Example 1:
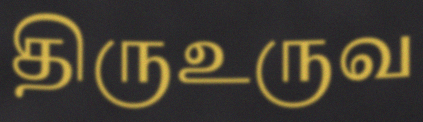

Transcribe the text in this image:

திருஉருவ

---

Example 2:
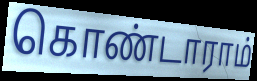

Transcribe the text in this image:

கொண்டாராம்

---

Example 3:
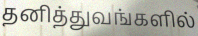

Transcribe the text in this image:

தனித்துவங்களில்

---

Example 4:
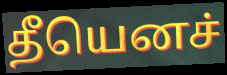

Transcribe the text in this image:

தீயெனச்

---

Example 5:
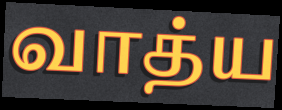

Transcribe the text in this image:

வாத்ய